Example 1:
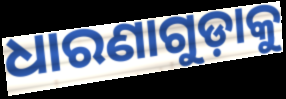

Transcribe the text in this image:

ଧାରଣାଗୁଡ଼ାକୁ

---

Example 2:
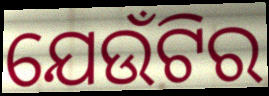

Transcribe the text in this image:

ଯେଉଁଟିର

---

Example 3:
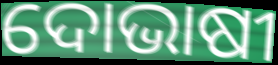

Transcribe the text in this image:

ଦୋଭାଷୀ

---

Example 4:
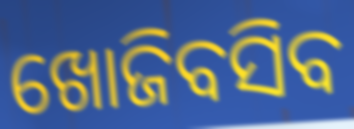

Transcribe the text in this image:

ଖୋଜିବସିବ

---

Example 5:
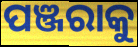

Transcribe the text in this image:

ପଞ୍ଜରାକୁ